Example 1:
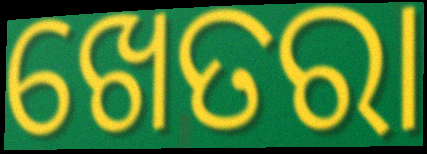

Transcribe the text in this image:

ଖେତରା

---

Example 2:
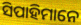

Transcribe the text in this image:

ସିପାହିମାନେ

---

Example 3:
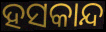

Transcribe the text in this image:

ହସକାନ୍ଦ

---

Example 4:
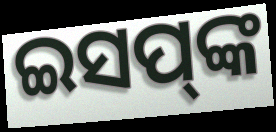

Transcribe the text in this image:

ଇସପ୍‌ଙ୍କ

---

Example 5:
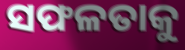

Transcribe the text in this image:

ସଫଳତାକୁ